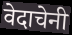
वेदाचेनी